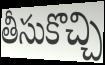
తీసుకొచ్చి